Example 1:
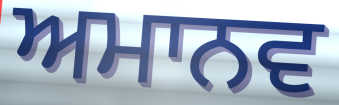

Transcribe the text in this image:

ਅਮਾਨਵ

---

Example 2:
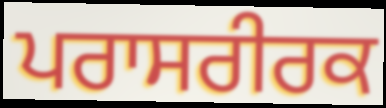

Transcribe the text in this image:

ਪਰਾਸਰੀਰਕ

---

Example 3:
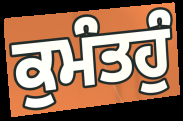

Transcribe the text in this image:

ਕੁਮੰਤਹੁੰ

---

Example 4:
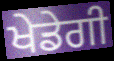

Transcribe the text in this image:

ਖੇਡੇਗੀ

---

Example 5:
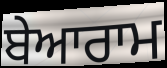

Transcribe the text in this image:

ਬੇਆਰਾਮ